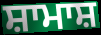
ਸ਼ਾਮਾਸ਼